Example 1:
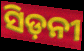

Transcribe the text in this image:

ସିଡ଼ନୀ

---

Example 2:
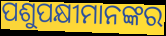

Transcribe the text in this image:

ପଶୁପକ୍ଷୀମାନଙ୍କର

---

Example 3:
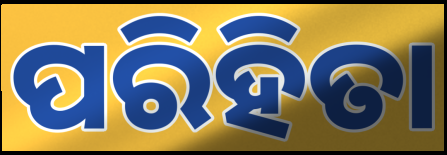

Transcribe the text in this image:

ପରିହିତା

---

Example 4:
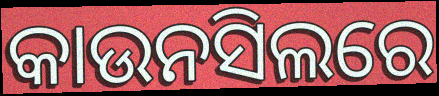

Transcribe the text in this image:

କାଉନସିଲରେ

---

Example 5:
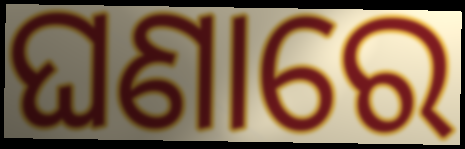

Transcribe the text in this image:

ଘଣାରେ